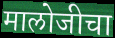
मालोजीचा